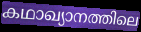
കഥാഖ്യാനത്തിലെ